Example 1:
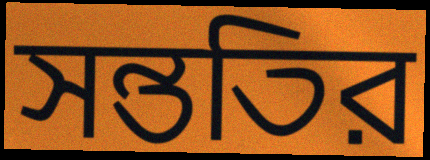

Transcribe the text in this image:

সন্ততির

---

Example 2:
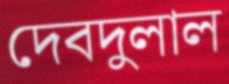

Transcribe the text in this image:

দেবদুলাল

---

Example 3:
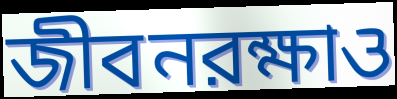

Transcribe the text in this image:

জীবনরক্ষাও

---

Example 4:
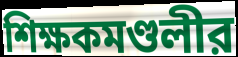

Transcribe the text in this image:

শিক্ষকমণ্ডলীর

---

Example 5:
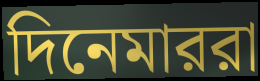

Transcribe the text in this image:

দিনেমাররা